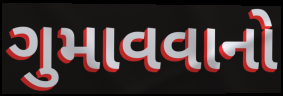
ગુમાવવાનો